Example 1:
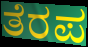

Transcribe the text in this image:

ತೆರಪ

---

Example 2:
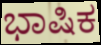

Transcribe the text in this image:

ಭಾಷಿಕ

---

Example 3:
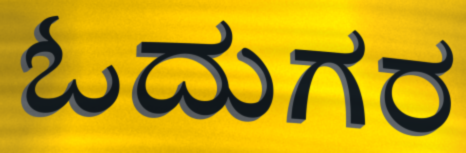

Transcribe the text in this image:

ಓದುಗರ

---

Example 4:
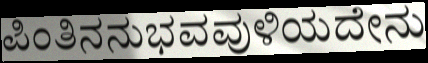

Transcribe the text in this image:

ಪಿಂತಿನನುಭವವುಳಿಯದೇನು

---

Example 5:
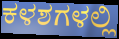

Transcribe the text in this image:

ಕಳಶಗಳಲ್ಲಿ